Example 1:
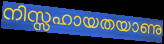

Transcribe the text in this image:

നിസ്സഹായതയാണു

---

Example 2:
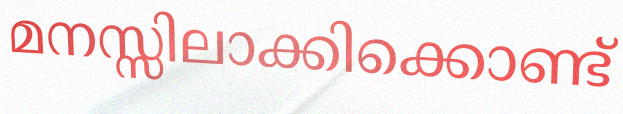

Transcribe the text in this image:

മനസ്സിലാക്കിക്കൊണ്ട്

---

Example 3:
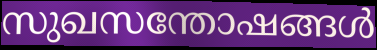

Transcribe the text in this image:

സുഖസന്തോഷങ്ങൾ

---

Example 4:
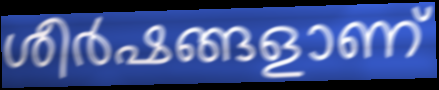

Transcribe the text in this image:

ശീർഷങ്ങളാണ്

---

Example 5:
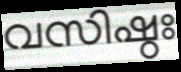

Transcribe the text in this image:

വസിഷ്ഠഃ